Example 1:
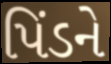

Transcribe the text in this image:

પિંડને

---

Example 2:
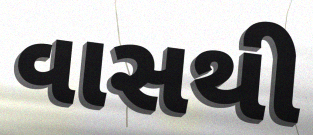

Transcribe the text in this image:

વાસથી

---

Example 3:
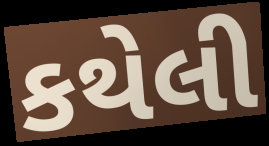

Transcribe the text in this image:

કથેલી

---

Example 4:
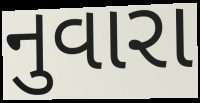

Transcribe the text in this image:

નુવારા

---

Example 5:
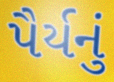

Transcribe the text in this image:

પૈર્યનું